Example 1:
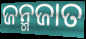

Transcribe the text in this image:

ଜନ୍ମଜାତ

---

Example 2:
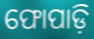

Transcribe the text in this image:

ଫୋପାଡ଼ି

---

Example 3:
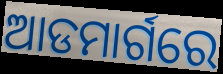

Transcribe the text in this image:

ଆଡମାର୍ଗରେ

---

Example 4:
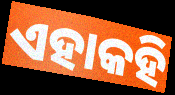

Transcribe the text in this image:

ଏହାକହି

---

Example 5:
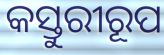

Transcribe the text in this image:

କସ୍ତୁରୀରୂପ